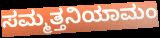
ಸಮ್ಮತ್ತನಿಯಾಮಂ